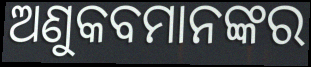
ଅଣୁକବମାନଙ୍କର